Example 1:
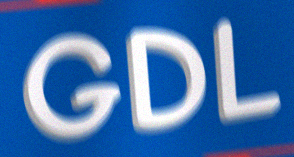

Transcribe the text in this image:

GDL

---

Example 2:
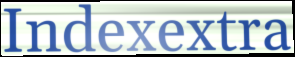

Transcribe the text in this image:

Indexextra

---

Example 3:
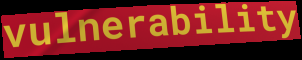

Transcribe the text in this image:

vulnerability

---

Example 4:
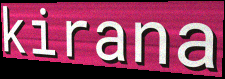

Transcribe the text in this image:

kirana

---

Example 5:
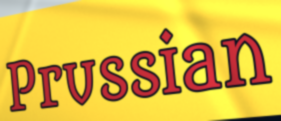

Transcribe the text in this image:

Prussian